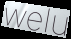
welu